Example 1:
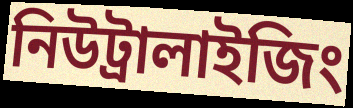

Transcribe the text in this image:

নিউট্রালাইজিং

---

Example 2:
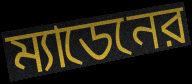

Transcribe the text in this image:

ম্যাডেনের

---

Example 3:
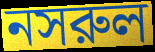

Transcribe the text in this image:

নসরুল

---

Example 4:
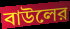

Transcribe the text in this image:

বাউলের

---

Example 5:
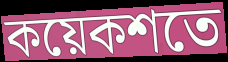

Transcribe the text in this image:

কয়েকশতে